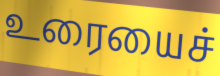
உரையைச்